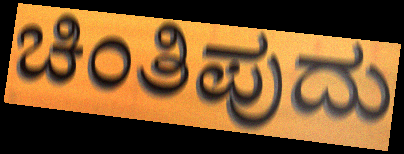
ಚಿಂತಿಪುದು